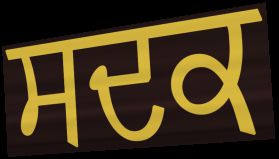
ਸਦਕ